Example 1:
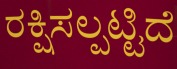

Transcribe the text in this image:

ರಕ್ಷಿಸಲ್ಪಟ್ಟಿದೆ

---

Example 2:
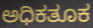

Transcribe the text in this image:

ಅಧಿಕತೂಕ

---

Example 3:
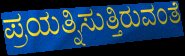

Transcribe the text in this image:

ಪ್ರಯತ್ನಿಸುತ್ತಿರುವಂತೆ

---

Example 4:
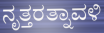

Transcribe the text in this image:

ನೃತ್ತರತ್ನಾವಳಿ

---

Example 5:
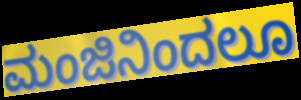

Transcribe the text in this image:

ಮಂಜಿನಿಂದಲೂ